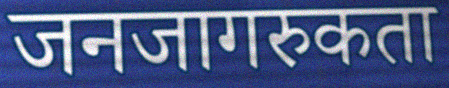
जनजागरुकता